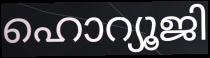
ഹൊറ്യൂജി